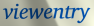
viewentry